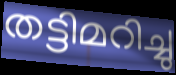
തട്ടിമറിച്ചു